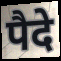
पैदे